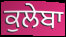
ਕੁਲੇਬਾ